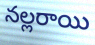
నల్లరాయి